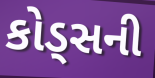
કોડ્સની